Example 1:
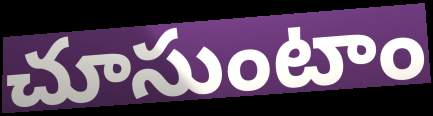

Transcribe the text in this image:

చూసుంటాం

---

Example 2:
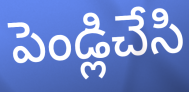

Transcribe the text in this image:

పెండ్లిచేసి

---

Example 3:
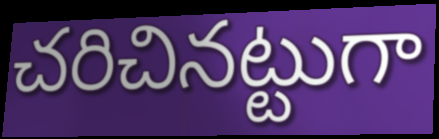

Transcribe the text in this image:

చరిచినట్టుగా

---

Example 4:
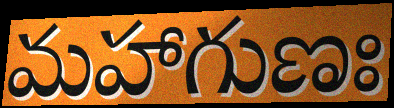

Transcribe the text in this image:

మహాగుణః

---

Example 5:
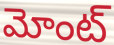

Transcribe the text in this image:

మోంట్